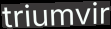
triumvir